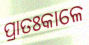
ପ୍ରାତଃକାଳେ